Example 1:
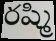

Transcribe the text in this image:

రష్మి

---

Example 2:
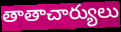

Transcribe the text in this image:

తాతాచార్యులు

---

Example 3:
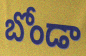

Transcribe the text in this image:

బోండా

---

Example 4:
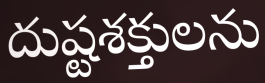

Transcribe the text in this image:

దుష్టశక్తులను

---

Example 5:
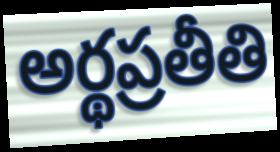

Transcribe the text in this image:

అర్థప్రతీతి